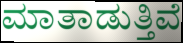
ಮಾತಾಡುತ್ತಿವೆ